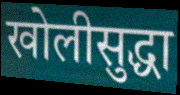
खोलीसुद्धा